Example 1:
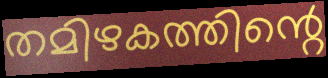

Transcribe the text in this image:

തമിഴകത്തിന്റെ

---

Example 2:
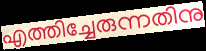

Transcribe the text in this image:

എത്തിച്ചേരുന്നതിനു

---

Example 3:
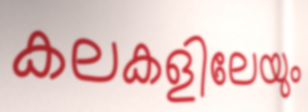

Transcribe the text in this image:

കലകളിലേയും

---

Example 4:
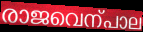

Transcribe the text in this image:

രാജവെന്പാല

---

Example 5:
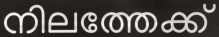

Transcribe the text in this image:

നിലത്തേക്ക്